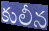
కులీన